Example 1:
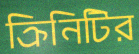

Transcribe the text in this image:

ক্রিনিটির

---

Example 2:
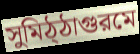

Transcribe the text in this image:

সুমিঠ্ঠাগুরমে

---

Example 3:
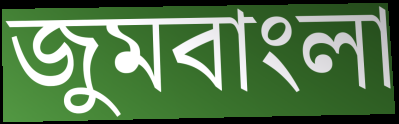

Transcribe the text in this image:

জুমবাংলা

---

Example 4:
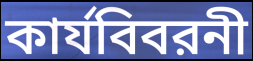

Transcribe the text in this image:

কার্যবিবরনী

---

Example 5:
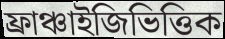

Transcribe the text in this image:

ফ্রাঞ্চাইজিভিত্তিক